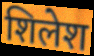
शिलेश